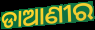
ଡାଆଣୀର